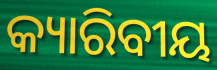
କ୍ୟାରିବୀୟ